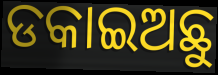
ଡକାଇଅଛୁ